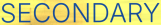
SECONDARY